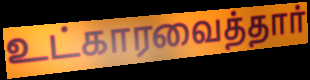
உட்காரவைத்தார்